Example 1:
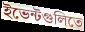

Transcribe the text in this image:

ইভেন্টগুলিতে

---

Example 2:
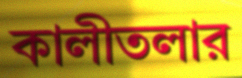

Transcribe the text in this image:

কালীতলার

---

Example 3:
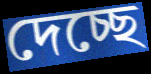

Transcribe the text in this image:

দেচ্ছে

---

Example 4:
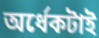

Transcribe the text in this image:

অর্ধেকটাই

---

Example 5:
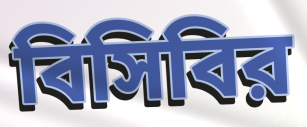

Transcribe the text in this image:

বিসিবির